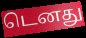
டெனது